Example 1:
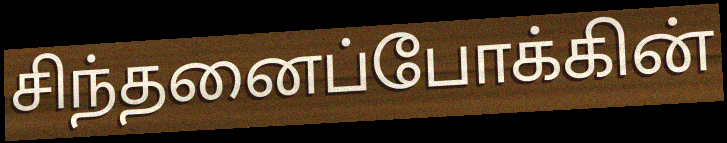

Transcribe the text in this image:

சிந்தனைப்போக்கின்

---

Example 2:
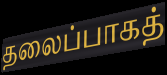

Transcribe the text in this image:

தலைப்பாகத்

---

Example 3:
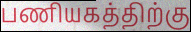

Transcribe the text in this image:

பணியகத்திற்கு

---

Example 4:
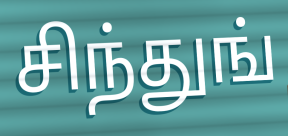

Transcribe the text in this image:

சிந்துங்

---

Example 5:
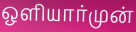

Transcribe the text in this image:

ஒளியார்முன்